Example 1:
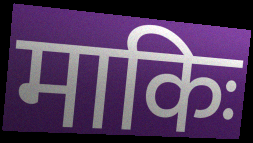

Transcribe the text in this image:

माकिः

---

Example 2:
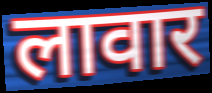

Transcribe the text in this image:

लावार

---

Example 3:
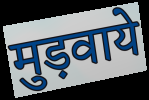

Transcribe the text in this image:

मुड़वाये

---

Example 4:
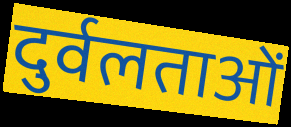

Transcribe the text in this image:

दुर्वलताओं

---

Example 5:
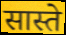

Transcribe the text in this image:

सास्ते